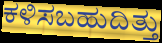
ಕಳಿಸಬಹುದಿತ್ತು